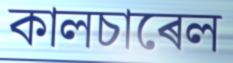
কালচাৰেল